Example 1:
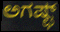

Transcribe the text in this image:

ಅಗಷ್ಟ್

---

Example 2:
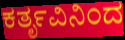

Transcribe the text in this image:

ಕರ್ತೃವಿನಿಂದ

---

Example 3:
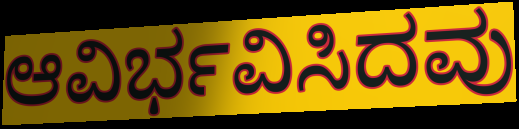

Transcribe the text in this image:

ಆವಿರ್ಭವಿಸಿದವು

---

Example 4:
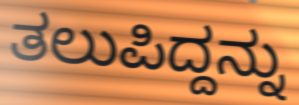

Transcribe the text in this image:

ತಲುಪಿದ್ದನ್ನು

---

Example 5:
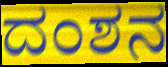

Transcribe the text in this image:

ದಂಶನ